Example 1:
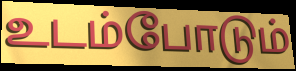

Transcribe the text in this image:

உடம்போடும்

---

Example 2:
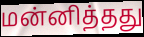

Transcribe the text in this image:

மன்னித்தது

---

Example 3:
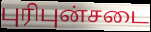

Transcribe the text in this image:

புரிபுன்சடை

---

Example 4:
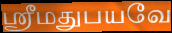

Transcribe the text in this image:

ஸ்ரீமதுபயவே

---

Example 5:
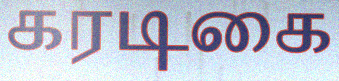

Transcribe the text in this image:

கரடிகை